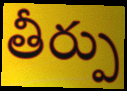
తీర్పు